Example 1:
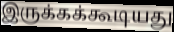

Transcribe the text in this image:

இருக்கக்கூடியது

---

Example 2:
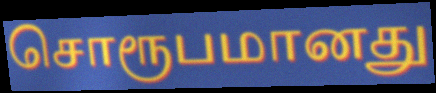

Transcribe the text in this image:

சொரூபமானது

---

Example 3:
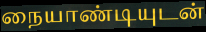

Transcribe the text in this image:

நையாண்டியுடன்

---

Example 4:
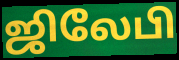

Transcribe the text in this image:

ஜிலேபி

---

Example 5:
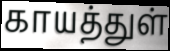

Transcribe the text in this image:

காயத்துள்